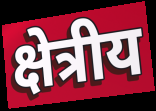
क्षेत्रीय